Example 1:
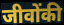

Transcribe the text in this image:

जीवोंकी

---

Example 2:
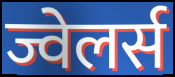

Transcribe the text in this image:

ज्वेलर्स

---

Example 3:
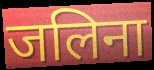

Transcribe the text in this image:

जलिना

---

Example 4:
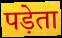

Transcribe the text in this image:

पड़ेता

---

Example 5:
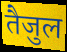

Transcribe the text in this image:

तैजुल